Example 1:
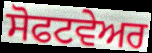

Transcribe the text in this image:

ਸੋਫਟਵੇਅਰ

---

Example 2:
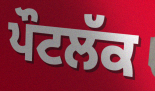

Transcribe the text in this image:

ਪੌਟਲੱਕ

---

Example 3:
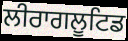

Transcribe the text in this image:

ਲੀਰਾਗਲੂਟਿਡ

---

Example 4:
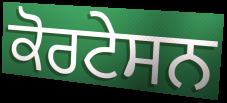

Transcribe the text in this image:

ਕੋਰਟੇਸਨ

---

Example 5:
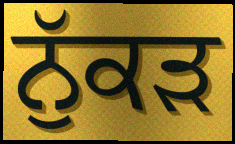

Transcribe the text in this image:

ਨੁੱਕਡ਼